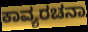
ಕಾವ್ಯರಚನಾ